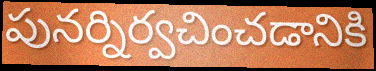
పునర్నిర్వచించడానికి